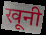
खूनी